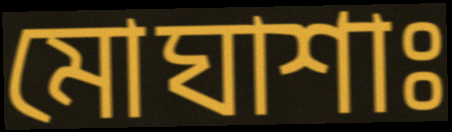
মোঘাশাঃ